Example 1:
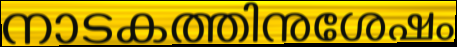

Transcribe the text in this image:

നാടകത്തിനുശേഷം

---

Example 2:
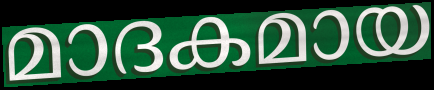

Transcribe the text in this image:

മാദകമായ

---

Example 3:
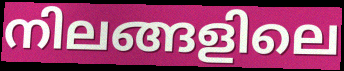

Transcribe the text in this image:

നിലങ്ങളിലെ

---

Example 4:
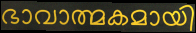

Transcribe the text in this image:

ഭാവാത്മകമായി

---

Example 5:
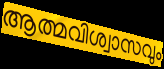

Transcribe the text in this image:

ആത്മവിശ്വാസവും